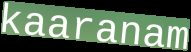
kaaranam